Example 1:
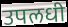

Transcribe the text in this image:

उपलधी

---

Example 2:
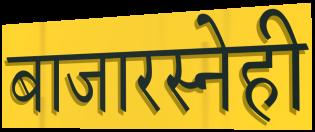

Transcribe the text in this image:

बाजारस्नेही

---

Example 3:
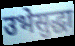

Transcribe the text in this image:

उभेसुद्धा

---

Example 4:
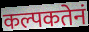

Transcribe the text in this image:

कल्पकतेनं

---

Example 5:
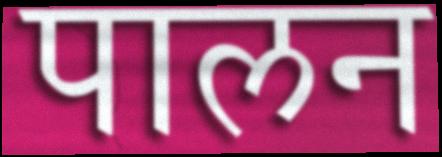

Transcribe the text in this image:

पालन